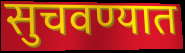
सुचवण्यात